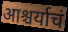
आश्चर्याचं